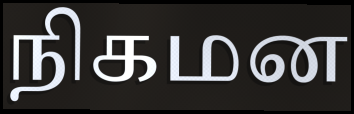
நிகமன